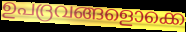
ഉപദ്രവങ്ങളൊക്കെ